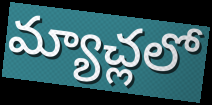
మ్యాచ్లలో